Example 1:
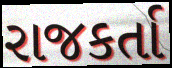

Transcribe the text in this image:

રાજકર્તા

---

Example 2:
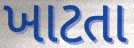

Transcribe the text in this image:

ખાટતા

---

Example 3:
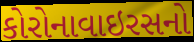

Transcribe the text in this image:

કોરોનાવાઇરસનો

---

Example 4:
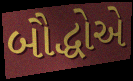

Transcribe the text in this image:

બૌદ્ધોએ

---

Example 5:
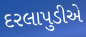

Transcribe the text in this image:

દરલાપુડીએ